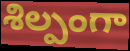
శిల్పంగా